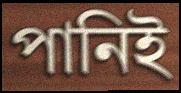
পানিই